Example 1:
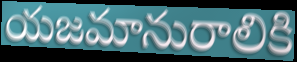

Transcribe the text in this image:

యజమానురాలికి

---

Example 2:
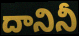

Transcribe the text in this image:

దానినీ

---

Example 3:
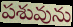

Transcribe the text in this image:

పశువును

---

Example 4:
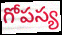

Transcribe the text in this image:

గోపస్య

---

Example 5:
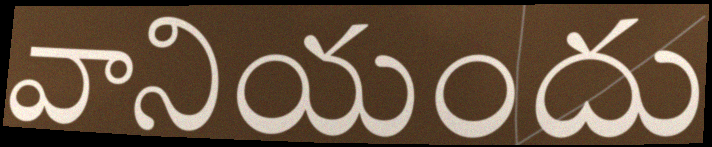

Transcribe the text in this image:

వానియందు